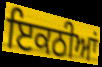
ਇਕਠੀਆਂ